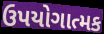
ઉપયોગાત્મક